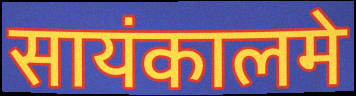
सायंकालमे